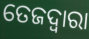
ତେଜଦ୍ୱାରା